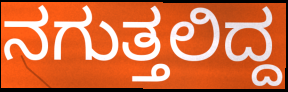
ನಗುತ್ತಲಿದ್ದ